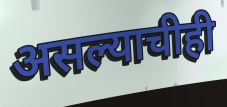
असल्याचीही